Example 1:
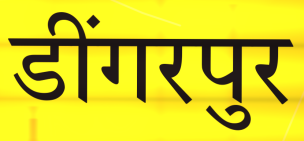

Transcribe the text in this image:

डींगरपुर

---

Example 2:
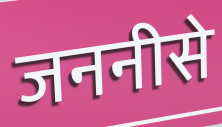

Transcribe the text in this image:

जननीसे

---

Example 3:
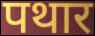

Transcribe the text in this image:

पथार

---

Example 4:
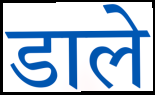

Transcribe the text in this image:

डाले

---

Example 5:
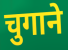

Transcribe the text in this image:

चुगाने